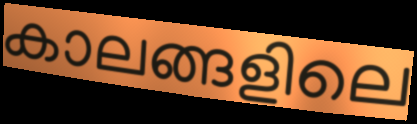
കാലങ്ങളിലെ